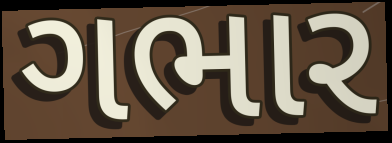
ગભાર